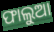
ଫାଲୁଆ